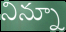
నిన్నూ